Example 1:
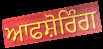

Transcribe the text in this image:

ਆਫਸ਼ੋਰਿੰਗ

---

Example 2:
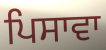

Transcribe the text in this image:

ਪਿਸਾਵਾ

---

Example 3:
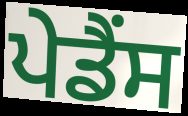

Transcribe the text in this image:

ਪੇਡੈਂਸ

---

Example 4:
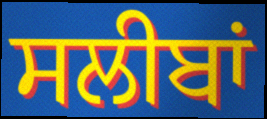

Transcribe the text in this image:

ਸਲੀਬਾਂ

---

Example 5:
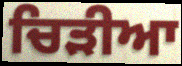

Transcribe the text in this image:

ਚਿੜੀਆ